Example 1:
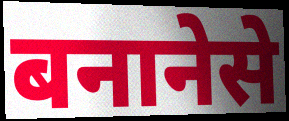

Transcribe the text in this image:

बनानेसे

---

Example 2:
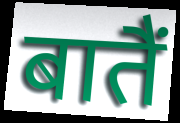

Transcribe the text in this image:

बातैं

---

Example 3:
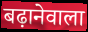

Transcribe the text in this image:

बढ़ानेवाला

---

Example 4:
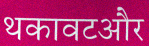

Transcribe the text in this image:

थकावटऔर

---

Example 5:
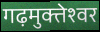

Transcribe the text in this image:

गढ़मुक्तेश्वर